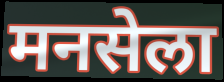
मनसेला